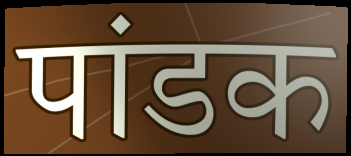
पांडक